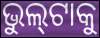
ଭୁଲ୍‍ଟାକୁ